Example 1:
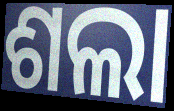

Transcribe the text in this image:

ଶଲା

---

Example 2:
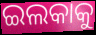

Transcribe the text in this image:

ଇଲକାକୁ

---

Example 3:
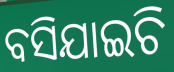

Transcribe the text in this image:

ବସିଯାଇଚି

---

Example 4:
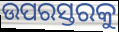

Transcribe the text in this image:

ଉପରସ୍ତରକୁ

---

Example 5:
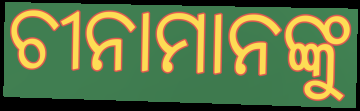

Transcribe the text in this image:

ଚୀନାମାନଙ୍କୁ